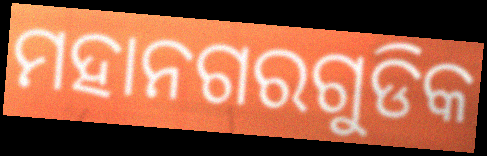
ମହାନଗରଗୁଡିକ